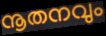
നൂതനവും